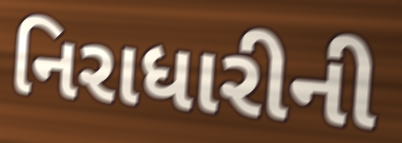
નિરાધારીની